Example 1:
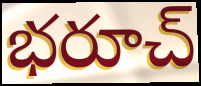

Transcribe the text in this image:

భరూచ్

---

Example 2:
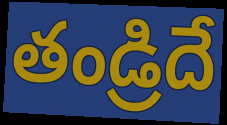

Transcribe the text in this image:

తండ్రిదే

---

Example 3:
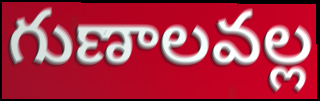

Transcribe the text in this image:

గుణాలవల్ల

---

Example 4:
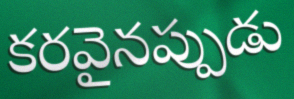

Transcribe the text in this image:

కరవైనప్పుడు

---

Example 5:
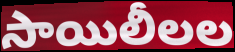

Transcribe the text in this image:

సాయిలీలల